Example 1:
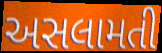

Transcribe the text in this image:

અસલામતી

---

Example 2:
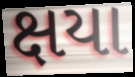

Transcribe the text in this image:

ક્ષયા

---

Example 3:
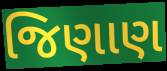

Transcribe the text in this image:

જિણાણ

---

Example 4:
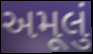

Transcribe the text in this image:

અમૂલું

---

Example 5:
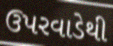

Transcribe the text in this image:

ઉપરવાડેથી